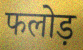
फलोड़